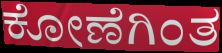
ಕೋಣೆಗಿಂತ